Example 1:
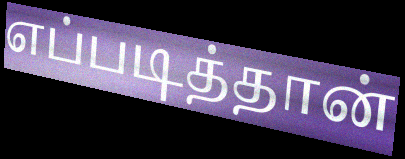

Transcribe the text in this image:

எப்படித்தான்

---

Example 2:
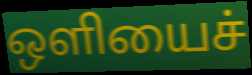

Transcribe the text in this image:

ஒளியைச்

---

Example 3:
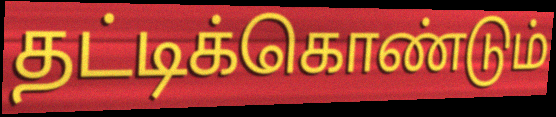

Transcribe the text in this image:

தட்டிக்கொண்டும்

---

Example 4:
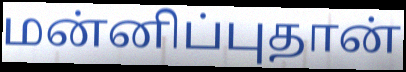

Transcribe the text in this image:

மன்னிப்புதான்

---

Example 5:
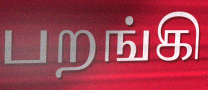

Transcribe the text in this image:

பறங்கி